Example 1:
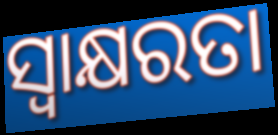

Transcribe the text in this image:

ସ୍ବାକ୍ଷରତା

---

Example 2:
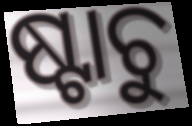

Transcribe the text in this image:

ଷ୍ଟାଚୁ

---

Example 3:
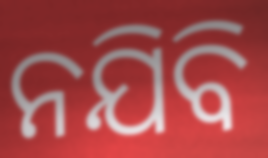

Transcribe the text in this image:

ନଯିବି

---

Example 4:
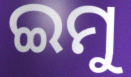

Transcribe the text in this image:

ଇମୁ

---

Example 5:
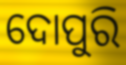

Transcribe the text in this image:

ଦୋପୁରି